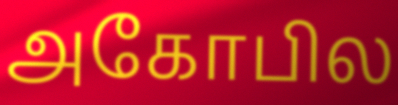
அகோபில